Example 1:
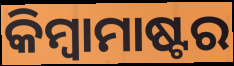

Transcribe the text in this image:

କିମ୍ୱାମାଷ୍ଟର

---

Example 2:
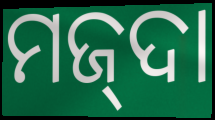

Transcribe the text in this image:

ମଜ୍‌ଦା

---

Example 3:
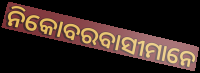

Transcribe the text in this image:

ନିକୋବରବାସୀମାନେ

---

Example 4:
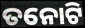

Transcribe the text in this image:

ତନୋଟି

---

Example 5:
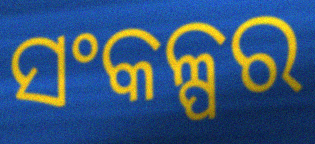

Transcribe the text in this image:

ସଂକଳ୍ପର